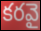
కరవై